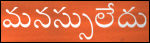
మనస్సులేదు